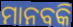
ମାନବକି